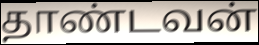
தாண்டவன்